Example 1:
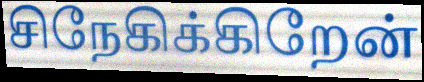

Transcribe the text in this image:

சிநேகிக்கிறேன்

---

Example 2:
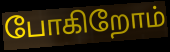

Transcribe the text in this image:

போகிறோம்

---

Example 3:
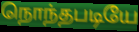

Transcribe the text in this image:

நொந்தபடியே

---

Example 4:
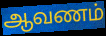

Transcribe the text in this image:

ஆவணம்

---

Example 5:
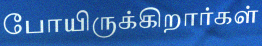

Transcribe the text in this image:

போயிருக்கிறார்கள்